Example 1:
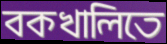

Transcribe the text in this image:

বকখালিতে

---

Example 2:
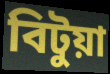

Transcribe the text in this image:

বিটুয়া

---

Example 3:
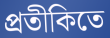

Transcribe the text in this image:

প্রতীকিতে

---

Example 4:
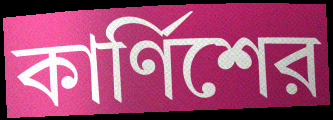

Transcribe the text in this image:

কার্ণিশের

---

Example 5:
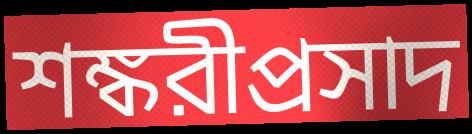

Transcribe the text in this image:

শঙ্করীপ্রসাদ